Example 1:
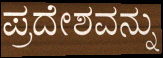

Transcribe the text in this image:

ಪ್ರದೇಶವನ್ನು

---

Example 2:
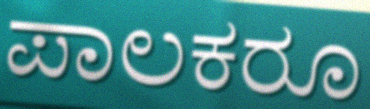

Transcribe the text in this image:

ಪಾಲಕರೂ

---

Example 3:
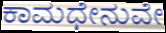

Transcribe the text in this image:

ಕಾಮಧೇನುವೇ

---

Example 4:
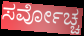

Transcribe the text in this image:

ಸರ್ವೋಚ್ಚ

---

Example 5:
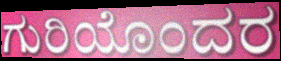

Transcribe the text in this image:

ಗುರಿಯೊಂದರ